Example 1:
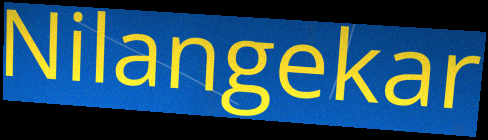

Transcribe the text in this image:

Nilangekar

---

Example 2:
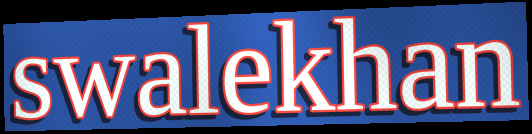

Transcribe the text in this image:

swalekhan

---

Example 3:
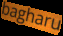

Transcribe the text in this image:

bagharu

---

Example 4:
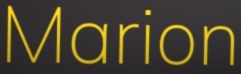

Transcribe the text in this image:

Marion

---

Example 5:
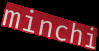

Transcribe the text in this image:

minchi